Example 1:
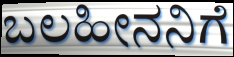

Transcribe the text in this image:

ಬಲಹೀನನಿಗೆ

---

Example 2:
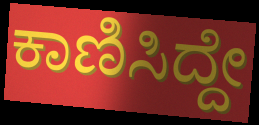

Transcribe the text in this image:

ಕಾಣಿಸಿದ್ದೇ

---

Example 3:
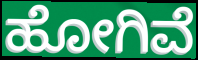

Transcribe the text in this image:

ಹೋಗಿವೆ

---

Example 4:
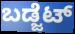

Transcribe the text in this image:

ಬಡ್ಜೆಟ್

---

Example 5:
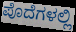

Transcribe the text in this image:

ಪೊದೆಗಳಲ್ಲಿ